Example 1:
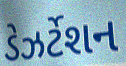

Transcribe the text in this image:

ડેઝર્ટેશન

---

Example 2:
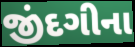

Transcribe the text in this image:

જીંદગીના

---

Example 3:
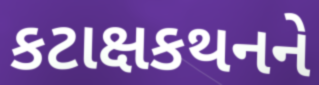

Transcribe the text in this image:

કટાક્ષકથનને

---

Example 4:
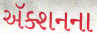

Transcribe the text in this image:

ઍક્શનના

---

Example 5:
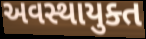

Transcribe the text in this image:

અવસ્થાયુક્ત